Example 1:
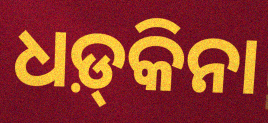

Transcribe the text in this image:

ଧଡ଼୍‍କିନା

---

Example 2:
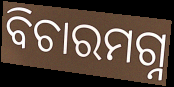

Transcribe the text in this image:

ବିଚାରମଗ୍ନ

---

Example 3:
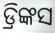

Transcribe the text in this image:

ଡ୍ରିଙ୍କସ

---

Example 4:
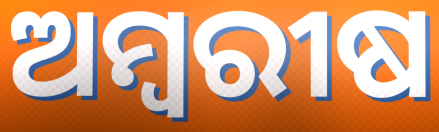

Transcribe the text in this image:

ଅମ୍ବରୀଷ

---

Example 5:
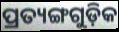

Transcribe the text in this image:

ପ୍ରତ୍ୟଙ୍ଗଗୁଡ଼ିକ